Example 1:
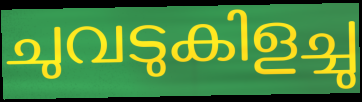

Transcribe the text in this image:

ചുവടുകിളച്ചു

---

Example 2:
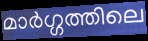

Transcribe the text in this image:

മാർഗ്ഗത്തിലെ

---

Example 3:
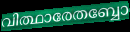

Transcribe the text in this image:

വിത്ഥാരേതബ്ബോ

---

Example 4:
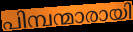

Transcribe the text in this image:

പിമ്പന്മാരായി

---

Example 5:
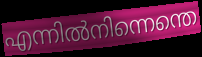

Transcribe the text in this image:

എന്നിൽനിന്നെന്തെ